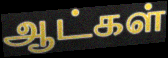
ஆட்கள்